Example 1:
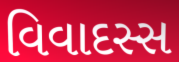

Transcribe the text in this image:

વિવાદસ્સ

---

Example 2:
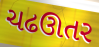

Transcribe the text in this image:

ચઢઊતર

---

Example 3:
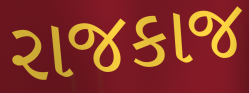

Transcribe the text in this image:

રાજકાજ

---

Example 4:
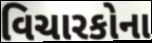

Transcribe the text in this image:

વિચારકોના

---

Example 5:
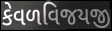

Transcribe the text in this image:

કેવળવિજયજી